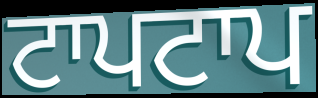
ਟਾਪਟਾਪ